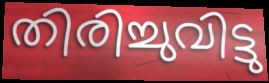
തിരിച്ചുവിട്ടു